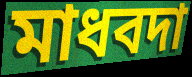
মাধবদা